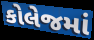
કોલેજમાં